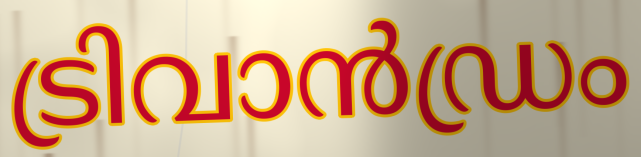
ട്രിവാൻഡ്രം